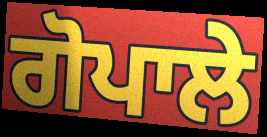
ਗੋਪਾਲੇ